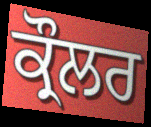
ਕ੍ਰੌਲਰ